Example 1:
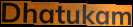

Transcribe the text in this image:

Dhatukam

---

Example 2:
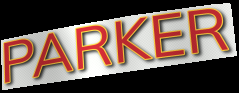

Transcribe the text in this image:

PARKER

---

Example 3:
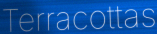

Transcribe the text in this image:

Terracottas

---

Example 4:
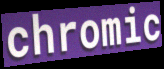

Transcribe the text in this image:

chromic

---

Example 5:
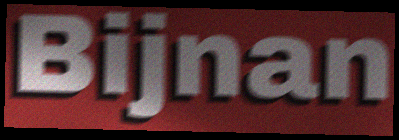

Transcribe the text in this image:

Bijnan